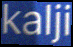
kalji